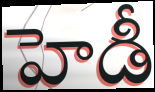
హెడీ